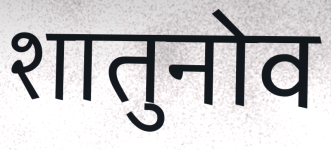
शातुनोव